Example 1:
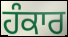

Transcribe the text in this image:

ਹੰਕਾਰ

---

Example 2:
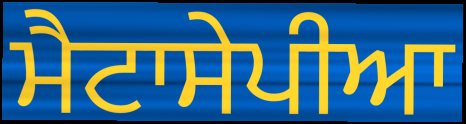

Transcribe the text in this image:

ਮੈਟਾਸੇਪੀਆ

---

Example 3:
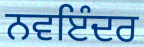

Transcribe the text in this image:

ਨਵਇੰਦਰ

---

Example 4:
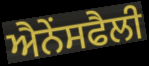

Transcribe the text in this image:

ਐਨੇਂਸਫੈਲੀ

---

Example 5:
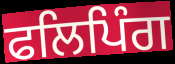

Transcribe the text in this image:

ਫਲਿਪਿੰਗ